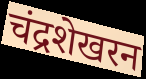
चंद्रशेखरन